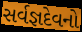
સર્વજ્ઞદેવનો